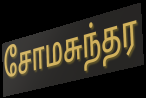
சோமசுந்தர